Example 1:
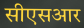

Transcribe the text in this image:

सीएसआर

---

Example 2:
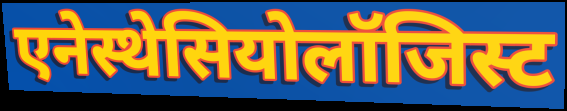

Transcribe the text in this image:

एनेस्थेसियोलॉजिस्ट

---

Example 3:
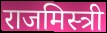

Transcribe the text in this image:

राजमिस्त्री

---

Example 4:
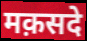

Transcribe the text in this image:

मक़सदे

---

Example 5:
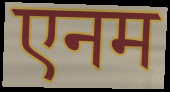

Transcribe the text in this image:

एनम